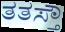
ತತಸ್ತೌ